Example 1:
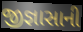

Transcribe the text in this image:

જીજ્ઞાસાની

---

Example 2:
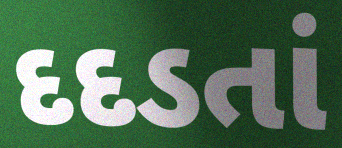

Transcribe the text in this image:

દદડતાં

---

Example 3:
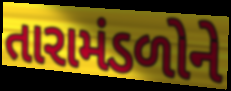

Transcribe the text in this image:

તારામંડળોને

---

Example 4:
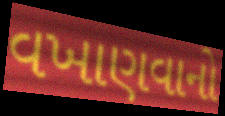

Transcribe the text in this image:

વખાણવાનો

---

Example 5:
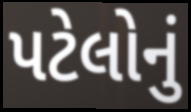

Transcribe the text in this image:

પટેલોનું